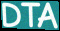
DTA